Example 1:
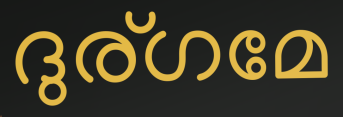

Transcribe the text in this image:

ദുര്ഗമേ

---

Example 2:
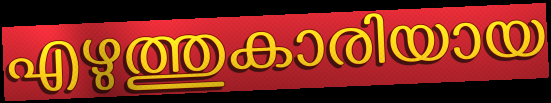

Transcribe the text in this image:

എഴുത്തുകാരിയായ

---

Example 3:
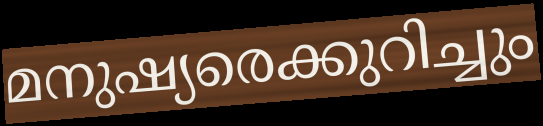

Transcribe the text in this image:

മനുഷ്യരെക്കുറിച്ചും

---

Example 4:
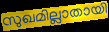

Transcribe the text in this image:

സുഖമില്ലാതായി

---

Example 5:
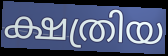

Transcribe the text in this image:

ക്ഷത്രിയ